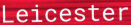
Leicester